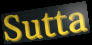
Sutta